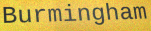
Burmingham